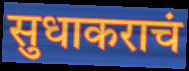
सुधाकराचं